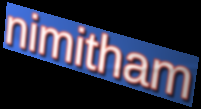
nimitham